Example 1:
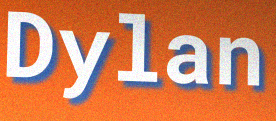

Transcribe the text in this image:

Dylan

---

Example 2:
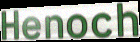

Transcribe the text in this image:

Henoch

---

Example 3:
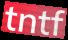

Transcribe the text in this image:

tntf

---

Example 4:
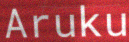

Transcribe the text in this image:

Aruku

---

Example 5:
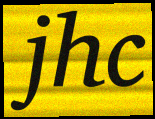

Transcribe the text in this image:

jhc